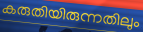
കരുതിയിരുന്നതിലും